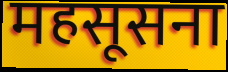
महसूसना